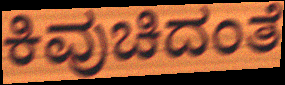
ಕಿವುಚಿದಂತೆ